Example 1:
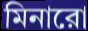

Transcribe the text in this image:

মিনারো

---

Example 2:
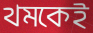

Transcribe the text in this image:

থমকেই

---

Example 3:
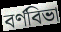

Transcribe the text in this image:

বর্ণবিভা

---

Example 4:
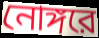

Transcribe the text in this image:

নোঙ্গরে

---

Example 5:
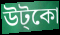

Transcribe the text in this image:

উট্কো